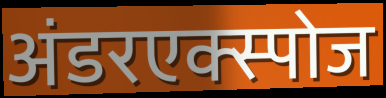
अंडरएक्स्पोज